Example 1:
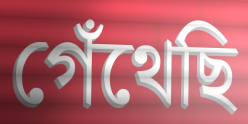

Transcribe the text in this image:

গেঁথেছি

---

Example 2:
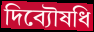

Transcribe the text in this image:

দিব্যৌষধি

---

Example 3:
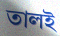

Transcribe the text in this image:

তালই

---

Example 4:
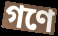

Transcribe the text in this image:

গণে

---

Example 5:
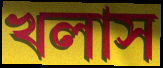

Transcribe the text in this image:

খলাস